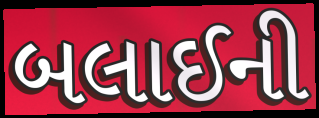
બલાઈની